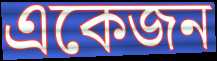
একেজন